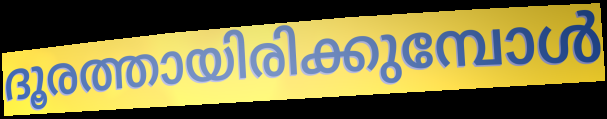
ദൂരത്തായിരിക്കുമ്പോൾ